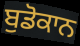
ਬੁਡੋਕਾਨ